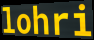
lohri